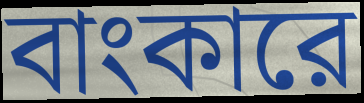
বাংকারে